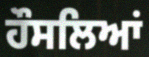
ਹੌਸਲਿਆਂ